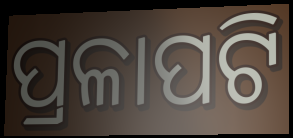
ପ୍ରଳାପଟି